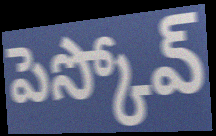
పెస్కోవ్